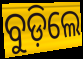
ବୁଡ଼ିଲେ